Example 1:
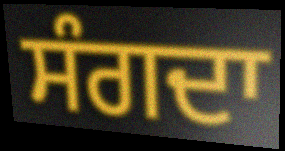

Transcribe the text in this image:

ਸੰਗਦਾ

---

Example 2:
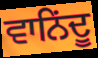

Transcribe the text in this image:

ਵਾਨਿਂਦੂ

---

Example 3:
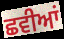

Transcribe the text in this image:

ਛਵੀਆਂ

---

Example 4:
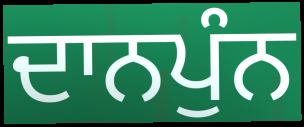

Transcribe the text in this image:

ਦਾਨਪੁੰਨ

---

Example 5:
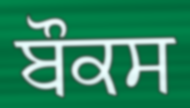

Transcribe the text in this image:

ਬੌਕਸ